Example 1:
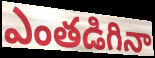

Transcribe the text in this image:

ఎంతడిగినా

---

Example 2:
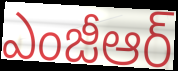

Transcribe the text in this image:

ఎంజీఆర్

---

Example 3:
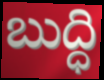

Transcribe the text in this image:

బుద్ధి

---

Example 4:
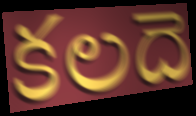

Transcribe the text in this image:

కలదె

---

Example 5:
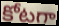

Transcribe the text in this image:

కోటగా